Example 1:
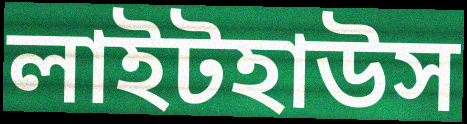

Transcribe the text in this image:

লাইটহাউস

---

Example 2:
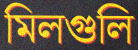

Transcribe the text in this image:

মিলগুলি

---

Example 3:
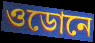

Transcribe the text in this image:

ওডোনে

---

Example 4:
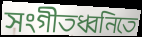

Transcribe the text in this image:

সংগীতধ্বনিতে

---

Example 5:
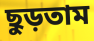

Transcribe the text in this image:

ছুড়তাম